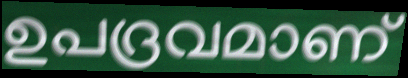
ഉപദ്രവമാണ്